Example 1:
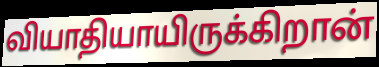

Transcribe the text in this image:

வியாதியாயிருக்கிறான்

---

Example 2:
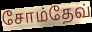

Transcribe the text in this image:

சோம்தேவ்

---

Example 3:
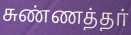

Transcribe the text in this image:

சுண்ணத்தர்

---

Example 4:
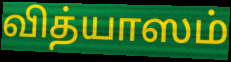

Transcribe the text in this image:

வித்யாஸம்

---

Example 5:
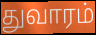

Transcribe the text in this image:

துவாரம்